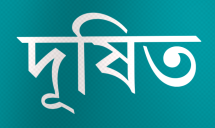
দূষিত